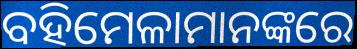
ବହିମେଳାମାନଙ୍କରେ